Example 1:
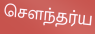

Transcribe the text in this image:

செளந்தர்ய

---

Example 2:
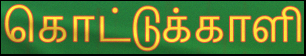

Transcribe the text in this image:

கொட்டுக்காளி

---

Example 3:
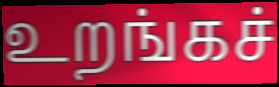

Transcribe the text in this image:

உறங்கச்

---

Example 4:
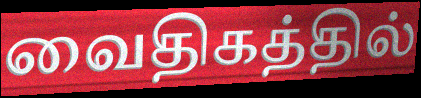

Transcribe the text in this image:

வைதிகத்தில்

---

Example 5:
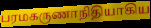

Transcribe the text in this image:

பரமகருணாநிதியாகிய